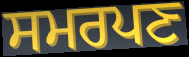
ਸਮਰਪਣ